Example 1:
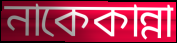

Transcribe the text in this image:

নাকেকান্না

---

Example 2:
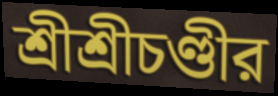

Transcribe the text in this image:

শ্রীশ্রীচণ্ডীর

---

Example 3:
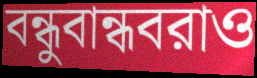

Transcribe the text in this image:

বন্ধুবান্ধবরাও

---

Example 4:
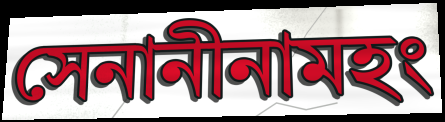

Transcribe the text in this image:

সেনানীনামহং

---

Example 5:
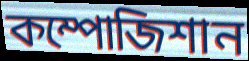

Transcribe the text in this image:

কম্পোজিশান